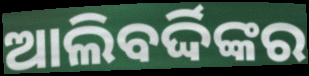
ଆଲିବର୍ଦ୍ଦିଙ୍କର